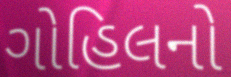
ગોહિલનો